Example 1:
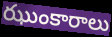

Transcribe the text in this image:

ఝుంకారాలు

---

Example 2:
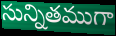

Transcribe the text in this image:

సున్నితముగా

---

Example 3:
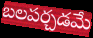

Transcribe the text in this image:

బలపర్చడమే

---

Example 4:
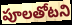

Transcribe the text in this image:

పూలతోటని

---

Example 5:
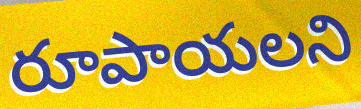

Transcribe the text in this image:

రూపాయలని